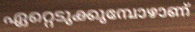
ഏറ്റെടുക്കുമ്പോഴാണ്